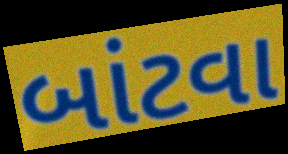
બાંટવા